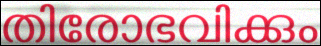
തിരോഭവിക്കും